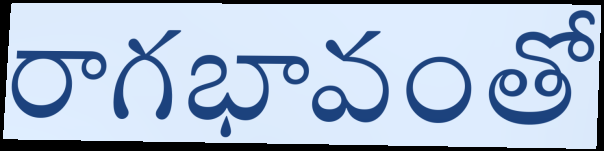
రాగభావంతో